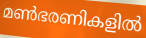
മൺഭരണികളിൽ